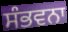
ਸੰਭਵਨਾ